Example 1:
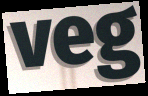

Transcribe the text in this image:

veg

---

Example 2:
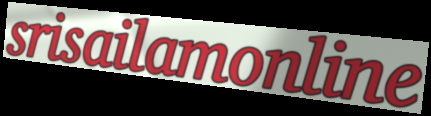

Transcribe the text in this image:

srisailamonline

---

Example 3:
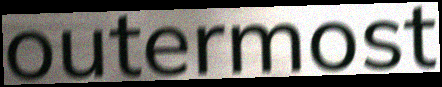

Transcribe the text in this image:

outermost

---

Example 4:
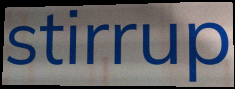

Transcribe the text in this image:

stirrup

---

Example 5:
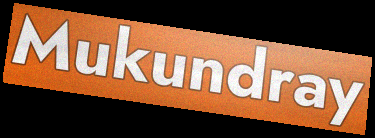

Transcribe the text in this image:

Mukundray